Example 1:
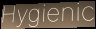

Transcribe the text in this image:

Hygienic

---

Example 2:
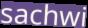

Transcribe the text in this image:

sachwi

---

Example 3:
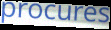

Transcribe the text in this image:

procures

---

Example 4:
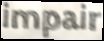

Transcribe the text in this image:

impair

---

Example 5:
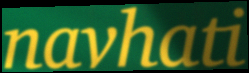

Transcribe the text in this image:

navhati